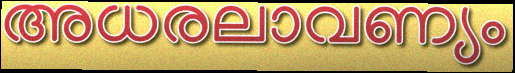
അധരലാവണ്യം